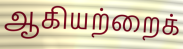
ஆகியற்றைக்